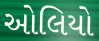
ઓલિયો